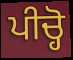
ਪੀਚ੍ਹੋ